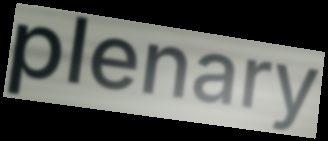
plenary